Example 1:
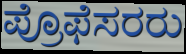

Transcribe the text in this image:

ಪ್ರೊಫೆಸರರು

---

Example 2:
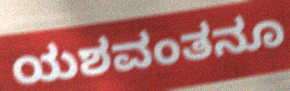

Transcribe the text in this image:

ಯಶವಂತನೂ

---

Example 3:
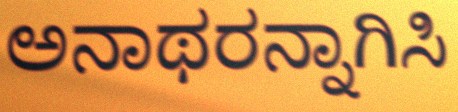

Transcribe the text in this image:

ಅನಾಥರನ್ನಾಗಿಸಿ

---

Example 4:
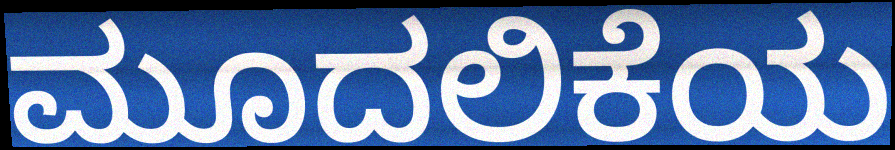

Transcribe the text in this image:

ಮೂದಲಿಕೆಯ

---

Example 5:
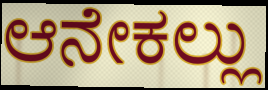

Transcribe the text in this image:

ಆನೇಕಲ್ಲು